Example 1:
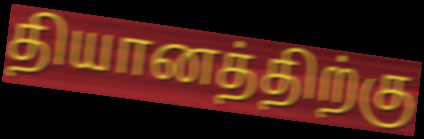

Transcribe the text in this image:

தியானத்திற்கு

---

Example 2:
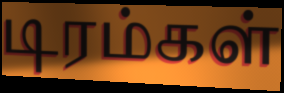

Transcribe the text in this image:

டிரம்கள்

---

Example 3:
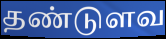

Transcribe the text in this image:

தண்டுளவ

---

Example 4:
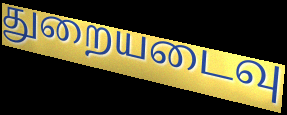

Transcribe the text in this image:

துறையடைவு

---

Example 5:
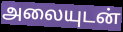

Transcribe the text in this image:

அலையுடன்